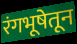
रंगभूषेतून